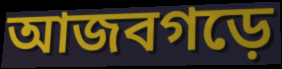
আজবগড়ে